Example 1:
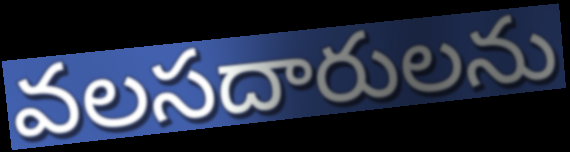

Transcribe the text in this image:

వలసదారులను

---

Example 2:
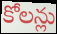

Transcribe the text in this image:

కోలన్లు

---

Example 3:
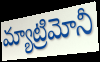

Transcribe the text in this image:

మ్యాట్రిమోనీ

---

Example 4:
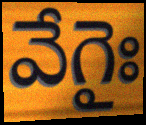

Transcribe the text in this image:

వేగైః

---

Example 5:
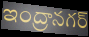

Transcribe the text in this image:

ఇంద్రానగర్